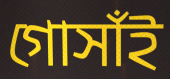
গোসাঁই